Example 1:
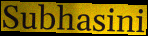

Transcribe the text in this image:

Subhasini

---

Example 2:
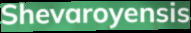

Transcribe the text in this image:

Shevaroyensis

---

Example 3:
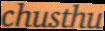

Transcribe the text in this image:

chusthu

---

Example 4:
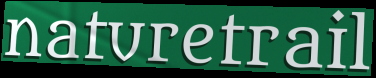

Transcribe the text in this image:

naturetrail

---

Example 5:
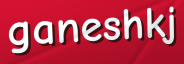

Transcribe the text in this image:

ganeshkj